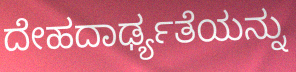
ದೇಹದಾರ್ಢ್ಯತೆಯನ್ನು